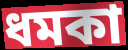
ধমকা